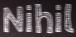
Nihil